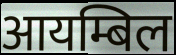
आयम्बिल